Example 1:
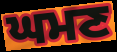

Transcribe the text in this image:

ਘਮਣ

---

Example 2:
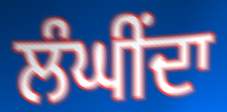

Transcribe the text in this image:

ਲੰਘੀਂਦਾ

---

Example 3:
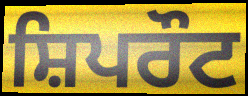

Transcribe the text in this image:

ਸ਼ਿਪਰੌਟ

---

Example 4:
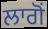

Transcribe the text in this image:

ਲਾਗੋਂ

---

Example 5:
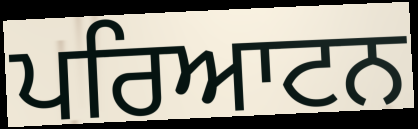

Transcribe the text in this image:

ਪਰਿਆਟਨ